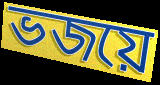
ভজয়ে